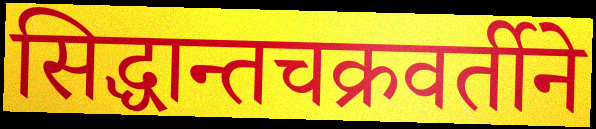
सिद्धान्तचक्रवर्तीने